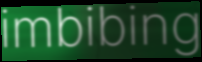
imbibing